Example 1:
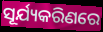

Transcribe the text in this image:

ସୂର୍ଯ୍ୟକରିଣରେ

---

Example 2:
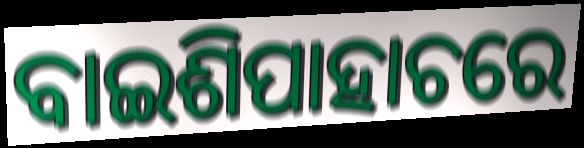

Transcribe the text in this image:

ବାଇଶିପାହାଚରେ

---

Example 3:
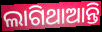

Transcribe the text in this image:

ଲାଗିଥାଆନ୍ତି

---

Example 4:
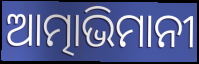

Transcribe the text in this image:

ଆତ୍ମାଭିମାନୀ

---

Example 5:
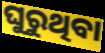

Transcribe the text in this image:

ଘୁରୁଥିବା